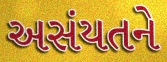
અસંયતને